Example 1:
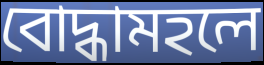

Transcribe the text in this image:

বোদ্ধামহলে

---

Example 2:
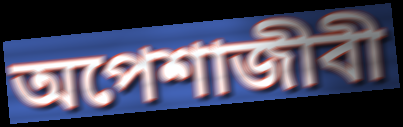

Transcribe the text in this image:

অপেশাজীবী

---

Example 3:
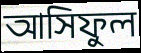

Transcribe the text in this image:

আসিফুল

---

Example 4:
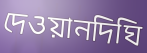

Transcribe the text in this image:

দেওয়ানদিঘি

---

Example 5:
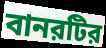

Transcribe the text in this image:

বানরটির